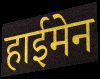
हाईमेन